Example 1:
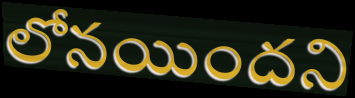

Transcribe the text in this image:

లోనయిందని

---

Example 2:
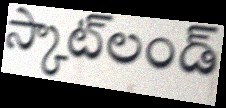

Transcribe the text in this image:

స్కాట్‌లండ్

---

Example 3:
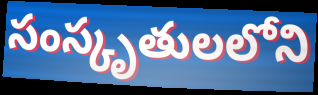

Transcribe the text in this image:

సంస్కృతులలోని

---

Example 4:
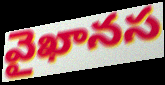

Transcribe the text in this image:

వైఖానస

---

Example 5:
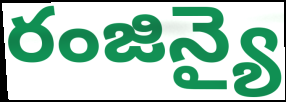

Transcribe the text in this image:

రంజిన్యై